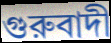
গুরুবাদী